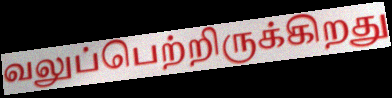
வலுப்பெற்றிருக்கிறது